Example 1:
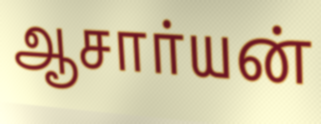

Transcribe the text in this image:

ஆசார்யன்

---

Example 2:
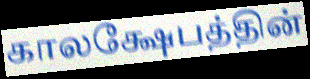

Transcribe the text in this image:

காலக்ஷேபத்தின்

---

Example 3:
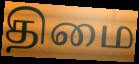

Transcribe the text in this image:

திமை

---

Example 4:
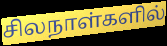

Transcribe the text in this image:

சிலநாள்களில்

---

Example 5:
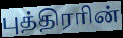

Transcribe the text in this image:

புத்திரரின்